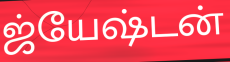
ஜ்யேஷ்டன்